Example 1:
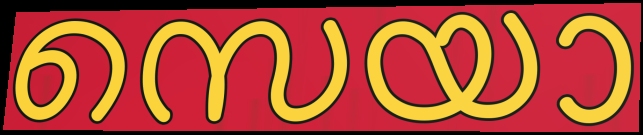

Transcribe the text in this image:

സെയാ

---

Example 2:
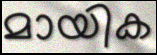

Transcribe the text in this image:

മായിക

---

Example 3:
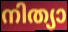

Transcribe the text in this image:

നിത്യാ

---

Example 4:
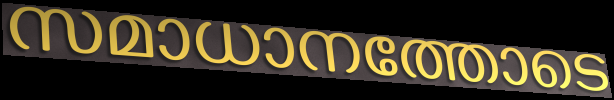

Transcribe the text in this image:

സമാധാനത്തോടെ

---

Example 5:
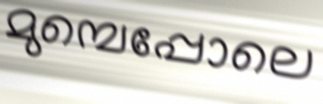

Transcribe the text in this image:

മുമ്പെപ്പോലെ